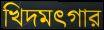
খিদমৎগার